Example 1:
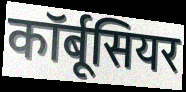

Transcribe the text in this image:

कॉर्बूसियर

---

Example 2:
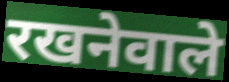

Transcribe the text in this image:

रखनेवाले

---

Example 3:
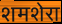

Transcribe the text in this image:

शमशेरा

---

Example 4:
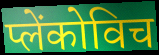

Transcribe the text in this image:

प्लेंकोविच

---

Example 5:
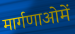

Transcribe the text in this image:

मार्गणाओमें